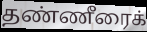
தண்ணீரைக்